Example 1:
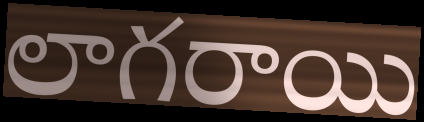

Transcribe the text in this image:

లాగరాయి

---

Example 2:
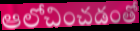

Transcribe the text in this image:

ఆలోచించడంతో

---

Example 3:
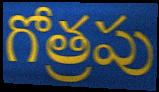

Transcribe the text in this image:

గోత్రపు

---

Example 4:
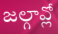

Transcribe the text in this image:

జల్గావ్లో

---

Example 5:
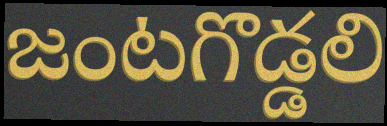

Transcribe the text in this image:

జంటగొడ్డలి